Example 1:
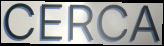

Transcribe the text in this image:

CERCA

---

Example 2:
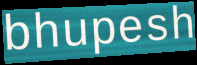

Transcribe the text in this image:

bhupesh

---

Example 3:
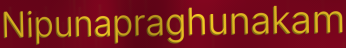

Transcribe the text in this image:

Nipunapraghunakam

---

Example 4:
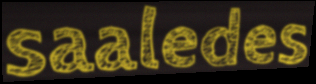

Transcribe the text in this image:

saaledes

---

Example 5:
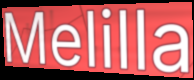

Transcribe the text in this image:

Melilla